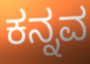
ಕನ್ನವ